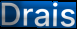
Drais